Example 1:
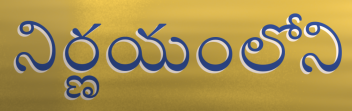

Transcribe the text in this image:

నిర్ణయంలోని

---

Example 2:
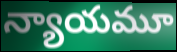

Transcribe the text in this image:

న్యాయమూ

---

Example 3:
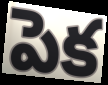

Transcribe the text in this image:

పెక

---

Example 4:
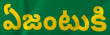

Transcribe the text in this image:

ఏజంటుకి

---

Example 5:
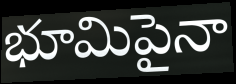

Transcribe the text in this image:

భూమిపైనా